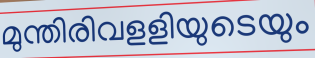
മുന്തിരിവളളിയുടെയും